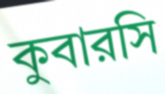
কুবারসি